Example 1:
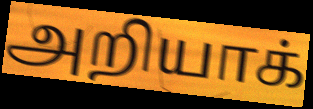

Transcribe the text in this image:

அறியாக்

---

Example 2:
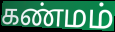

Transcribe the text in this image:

கண்மம்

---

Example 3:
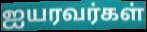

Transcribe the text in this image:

ஐயரவர்கள்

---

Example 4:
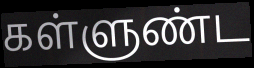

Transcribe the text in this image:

கள்ளுண்ட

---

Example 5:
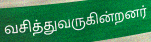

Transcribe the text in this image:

வசித்துவருகின்றனர்